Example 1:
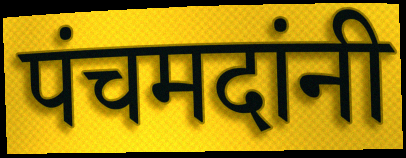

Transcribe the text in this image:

पंचमदांनी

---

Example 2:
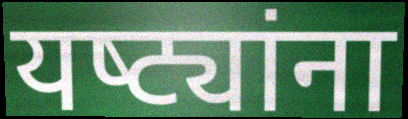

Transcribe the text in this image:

यष्ट्यांना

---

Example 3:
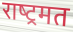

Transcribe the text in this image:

राष्ट्रमत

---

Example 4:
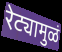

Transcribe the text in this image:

रेट्यामुळं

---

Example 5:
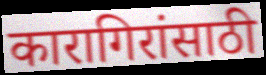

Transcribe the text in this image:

कारागिरांसाठी